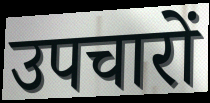
उपचारों